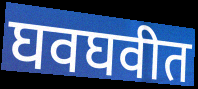
घवघवीत